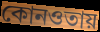
কোনওতায়